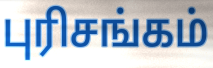
புரிசங்கம்